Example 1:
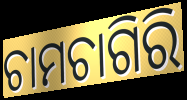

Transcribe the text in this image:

ଚାମଚାଗିରି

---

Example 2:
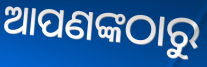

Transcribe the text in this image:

ଆପଣଙ୍କଠାରୁ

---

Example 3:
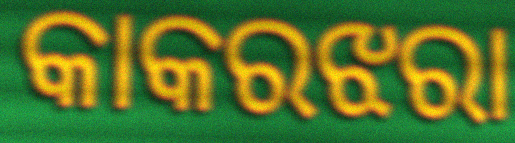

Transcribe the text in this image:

କାକରଝରା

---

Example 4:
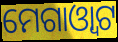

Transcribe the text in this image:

ମେଗାଓ୍ୱାଟ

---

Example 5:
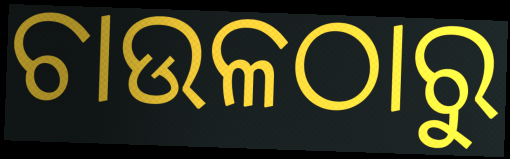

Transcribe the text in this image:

ଚାଉଳଠାରୁ